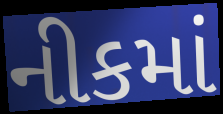
નીકમાં